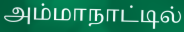
அம்மாநாட்டில்